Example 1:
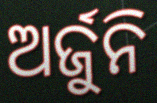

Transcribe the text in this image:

ଅର୍ଜୁନି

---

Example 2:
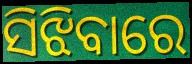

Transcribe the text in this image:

ସିଝିବାରେ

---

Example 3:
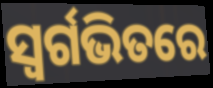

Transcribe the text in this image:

ସ୍ଵର୍ଗଭିତରେ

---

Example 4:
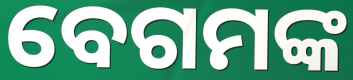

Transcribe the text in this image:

ବେଗମଙ୍କ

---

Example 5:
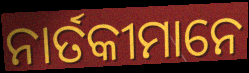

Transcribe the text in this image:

ନାର୍ତକୀମାନେ